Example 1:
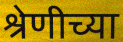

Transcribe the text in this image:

श्रेणीच्या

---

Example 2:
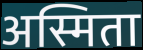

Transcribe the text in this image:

अस्मिता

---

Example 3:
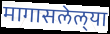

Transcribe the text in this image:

मागासलेल्या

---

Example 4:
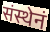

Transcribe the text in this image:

संस्थेनं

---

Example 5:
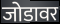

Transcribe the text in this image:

जोडावर